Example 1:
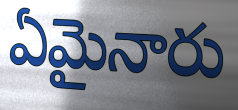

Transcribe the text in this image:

ఏమైనారు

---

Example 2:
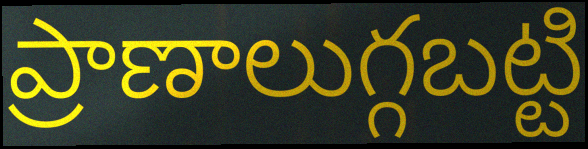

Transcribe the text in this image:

ప్రాణాలుగ్గబట్టి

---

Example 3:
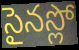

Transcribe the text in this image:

సైనస్లో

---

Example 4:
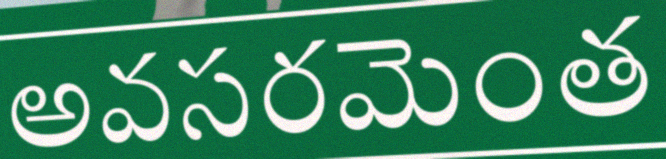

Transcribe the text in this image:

అవసరమెంత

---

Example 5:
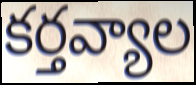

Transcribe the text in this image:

కర్తవ్యాల